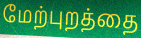
மேற்புறத்தை